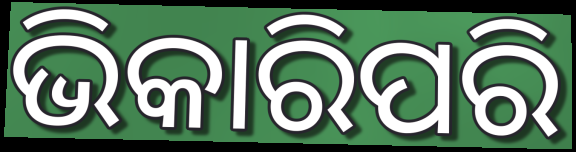
ଭିକାରିପରି